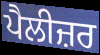
ਪੈਲੀਜ਼ਰ